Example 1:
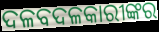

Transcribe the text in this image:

ଦଳବଦଳକାରୀଙ୍କର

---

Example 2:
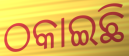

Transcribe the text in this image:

ଠକାଇଛି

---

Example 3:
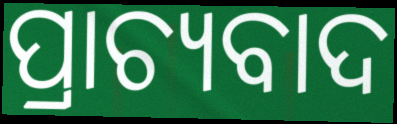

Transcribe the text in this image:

ପ୍ରାଚ୍ୟବାଦ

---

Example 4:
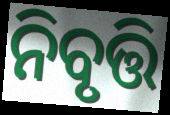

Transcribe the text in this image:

ନିବୃତ୍ତି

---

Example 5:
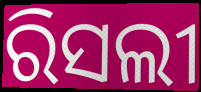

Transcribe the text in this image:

ରିସଲୀ